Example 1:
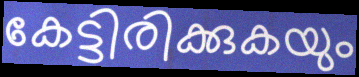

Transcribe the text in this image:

കേട്ടിരിക്കുകയും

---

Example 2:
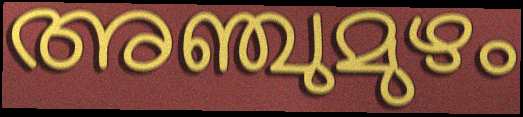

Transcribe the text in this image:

അഞ്ചുമുഴം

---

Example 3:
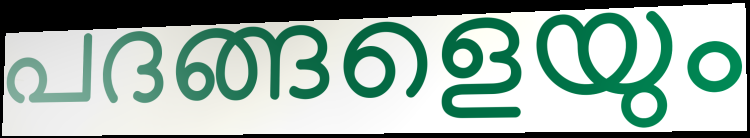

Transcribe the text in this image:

പദങ്ങളെയും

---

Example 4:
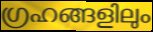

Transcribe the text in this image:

ഗ്രഹങ്ങളിലും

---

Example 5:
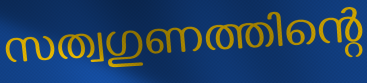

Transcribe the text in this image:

സത്വഗുണത്തിന്റെ